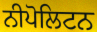
ਨੀਪੋਲਿਟਨ